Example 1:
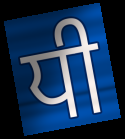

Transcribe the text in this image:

ਧੀ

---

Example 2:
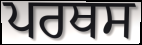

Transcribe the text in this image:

ਪਰਥਸ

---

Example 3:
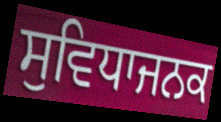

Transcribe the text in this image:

ਸੁਵਿਧਾਜਨਕ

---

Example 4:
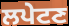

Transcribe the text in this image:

ਲਪੇਟਣ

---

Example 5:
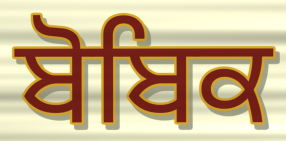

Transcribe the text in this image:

ਬੋਬਿਕ